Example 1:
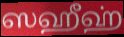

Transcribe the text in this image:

ஸஹீஹ்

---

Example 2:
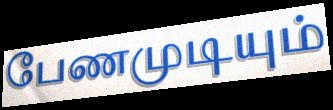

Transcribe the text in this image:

பேணமுடியும்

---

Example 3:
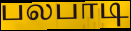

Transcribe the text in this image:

பலபாடி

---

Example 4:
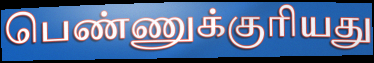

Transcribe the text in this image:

பெண்ணுக்குரியது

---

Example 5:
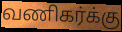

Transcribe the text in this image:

வணிகர்க்கு